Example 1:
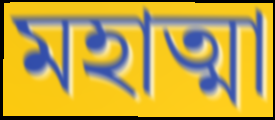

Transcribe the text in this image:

মহাত্মা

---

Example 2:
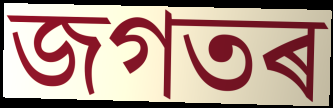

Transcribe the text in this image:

জগতৰ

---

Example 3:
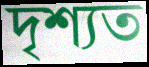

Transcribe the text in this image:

দৃশ্যত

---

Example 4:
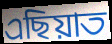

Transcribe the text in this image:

এছিয়াত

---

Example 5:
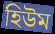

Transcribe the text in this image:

হিউম